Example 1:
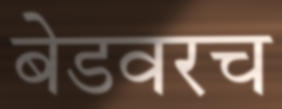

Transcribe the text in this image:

बेडवरच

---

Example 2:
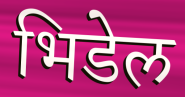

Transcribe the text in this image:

भिडेल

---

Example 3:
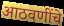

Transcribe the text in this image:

आठवणींचे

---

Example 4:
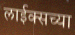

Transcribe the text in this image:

लाईक्सच्या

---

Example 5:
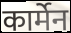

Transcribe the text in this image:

कार्मेन